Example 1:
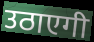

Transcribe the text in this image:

उठाएगी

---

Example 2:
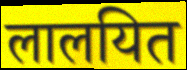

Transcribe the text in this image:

लालयित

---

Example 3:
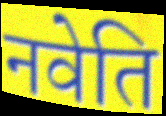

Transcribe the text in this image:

नवेति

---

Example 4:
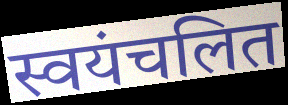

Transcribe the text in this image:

स्वयंचलित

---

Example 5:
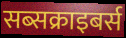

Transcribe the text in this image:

सब्सक्राइबर्स